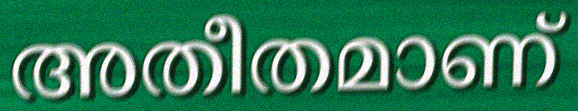
അതീതമാണ്